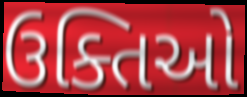
ઉક્તિઓ